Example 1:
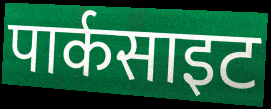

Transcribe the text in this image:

पार्कसाइट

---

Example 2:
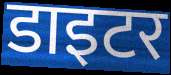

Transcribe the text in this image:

डाइटर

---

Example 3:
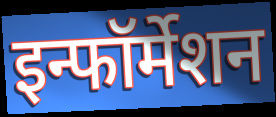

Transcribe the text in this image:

इन्फॉर्मेशन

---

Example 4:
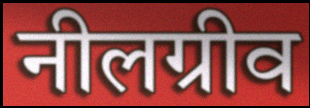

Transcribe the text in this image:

नीलग्रीव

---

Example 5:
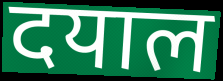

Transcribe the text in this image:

दयाल